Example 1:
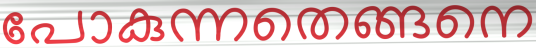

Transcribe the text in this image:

പോകുന്നതെങ്ങനെ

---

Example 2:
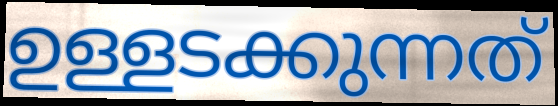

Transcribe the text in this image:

ഉള്ളടക്കുന്നത്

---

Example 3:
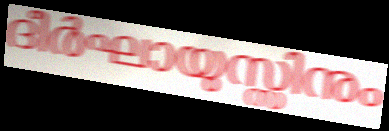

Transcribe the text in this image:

ദീർഘായുസ്സിനും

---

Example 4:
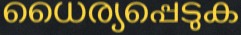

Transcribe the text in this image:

ധൈര്യപ്പെടുക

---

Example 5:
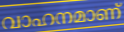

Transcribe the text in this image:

വാഹനമാണ്